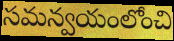
సమన్వయంలోంచి